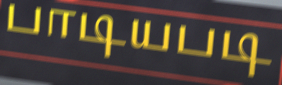
பாடியபடி